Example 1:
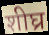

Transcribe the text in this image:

शीघ्र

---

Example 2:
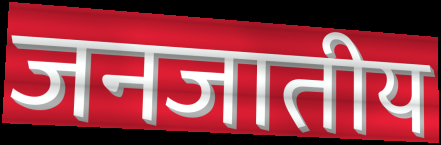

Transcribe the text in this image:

जनजातीय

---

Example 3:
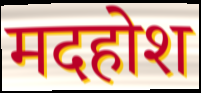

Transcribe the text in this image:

मदहोश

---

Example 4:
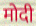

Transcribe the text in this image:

मोदी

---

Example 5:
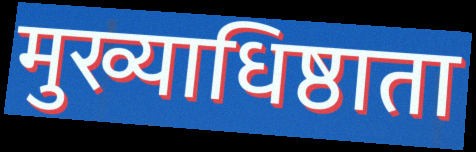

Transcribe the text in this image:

मुख्याधिष्ठाता